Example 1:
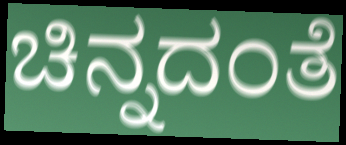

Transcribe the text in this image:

ಚಿನ್ನದಂತೆ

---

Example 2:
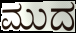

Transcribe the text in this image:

ಮುದ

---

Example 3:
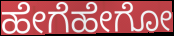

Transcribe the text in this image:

ಹೇಗೆಹೇಗೋ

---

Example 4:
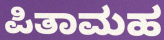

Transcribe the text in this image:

ಪಿತಾಮಹ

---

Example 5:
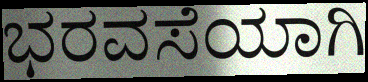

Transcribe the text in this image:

ಭರವಸೆಯಾಗಿ